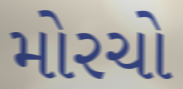
મોરચો